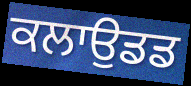
ਕਲਾਉਡਡ